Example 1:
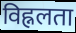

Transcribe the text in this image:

विह्नलता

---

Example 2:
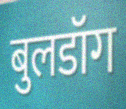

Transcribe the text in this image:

बुलडॉग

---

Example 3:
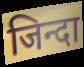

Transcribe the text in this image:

जिन्दा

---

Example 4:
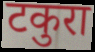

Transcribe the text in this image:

टकुरा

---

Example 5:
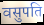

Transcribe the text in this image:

वसुपति